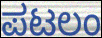
ಪಟಲಂ